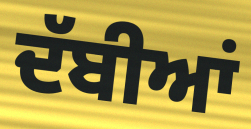
ਦੱਬੀਆਂ